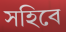
সহিবে